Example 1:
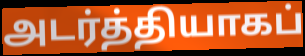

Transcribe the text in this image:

அடர்த்தியாகப்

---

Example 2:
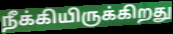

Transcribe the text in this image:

நீக்கியிருக்கிறது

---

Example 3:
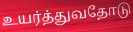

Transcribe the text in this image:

உயர்த்துவதோடு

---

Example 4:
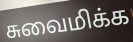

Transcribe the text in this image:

சுவைமிக்க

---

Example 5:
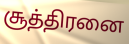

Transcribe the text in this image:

சூத்திரனை